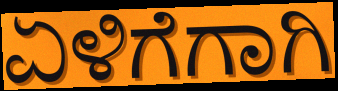
ಏಳಿಗೆಗಾಗಿ